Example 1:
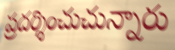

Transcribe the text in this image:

ప్రదర్శించుచున్నారు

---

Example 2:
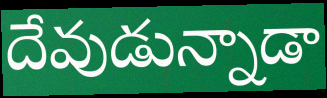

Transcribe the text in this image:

దేవుడున్నాడా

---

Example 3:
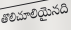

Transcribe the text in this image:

తొలిచూలియైనది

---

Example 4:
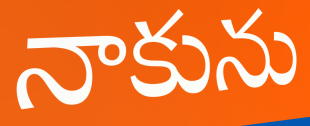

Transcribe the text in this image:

నాకును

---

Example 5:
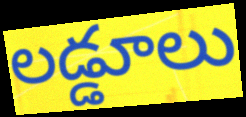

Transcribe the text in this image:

లడ్డూలు